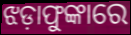
ଝଡ଼ାଫୁଙ୍କାରେ